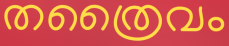
തത്രൈവം